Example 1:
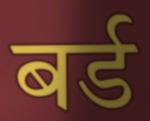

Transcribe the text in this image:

बर्ड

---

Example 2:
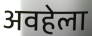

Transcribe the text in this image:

अवहेला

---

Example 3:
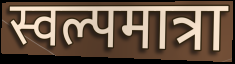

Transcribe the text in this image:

स्वल्पमात्रा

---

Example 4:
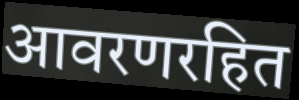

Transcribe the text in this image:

आवरणरहित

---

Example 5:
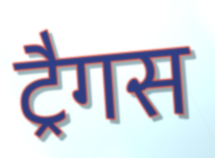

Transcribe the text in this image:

ट्रैगस